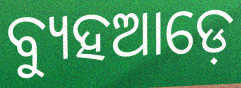
ବ୍ୟୁହଆଡ଼େ